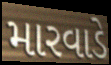
મારવાડે